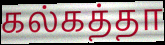
கல்கத்தா